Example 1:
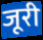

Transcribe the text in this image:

जूरी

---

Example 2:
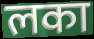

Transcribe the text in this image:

लका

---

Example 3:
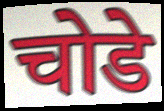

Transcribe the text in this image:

चोडे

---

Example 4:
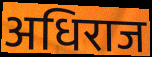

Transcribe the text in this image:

अधिराज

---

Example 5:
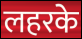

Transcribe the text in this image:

लहरके